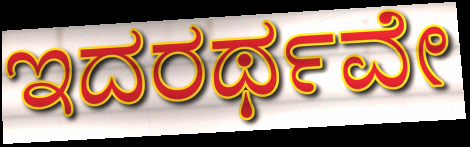
ಇದರರ್ಥವೇ